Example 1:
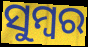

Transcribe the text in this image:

ସୁମ୍ବର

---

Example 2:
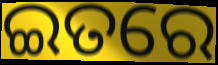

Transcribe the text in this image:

ଇତରେ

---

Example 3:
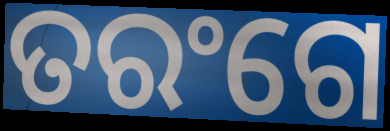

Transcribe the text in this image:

ତରଂଗେ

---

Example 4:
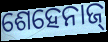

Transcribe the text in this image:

ଶେହେନାଜ୍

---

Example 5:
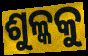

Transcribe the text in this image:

ଶୁଳ୍କକୁ